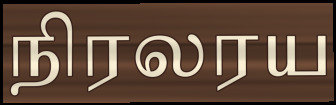
நிரலரய